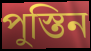
পুস্তিন